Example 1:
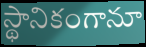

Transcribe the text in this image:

స్థానికంగానూ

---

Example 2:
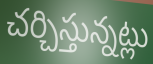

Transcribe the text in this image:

చర్చిస్తున్నట్లు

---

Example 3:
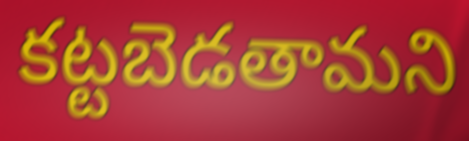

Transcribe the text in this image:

కట్టబెడతామని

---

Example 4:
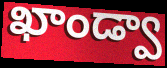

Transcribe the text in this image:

ఖాండ్వా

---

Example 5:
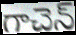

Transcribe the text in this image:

గాచెన్